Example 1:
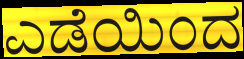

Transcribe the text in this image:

ಎಡೆಯಿಂದ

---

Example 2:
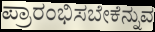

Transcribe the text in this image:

ಪ್ರಾರಂಭಿಸಬೇಕೆನ್ನುವ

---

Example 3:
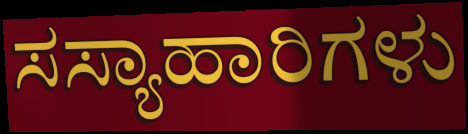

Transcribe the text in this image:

ಸಸ್ಯಾಹಾರಿಗಳು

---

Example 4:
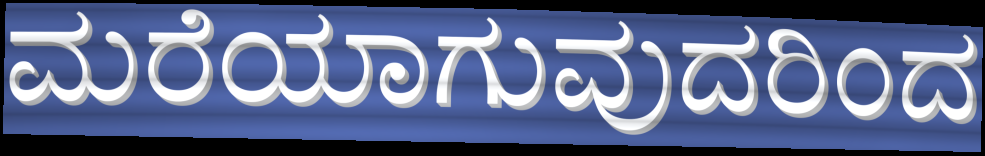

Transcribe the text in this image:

ಮರೆಯಾಗುವುದರಿಂದ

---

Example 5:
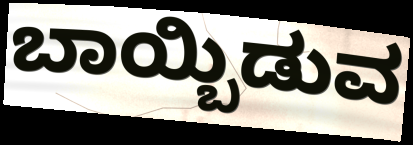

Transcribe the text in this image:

ಬಾಯ್ಬಿಡುವ